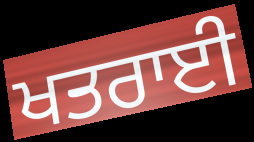
ਖਤਰਾਈ